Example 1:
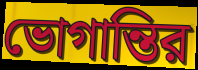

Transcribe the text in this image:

ভোগান্তির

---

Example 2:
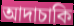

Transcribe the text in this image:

আদাচাকি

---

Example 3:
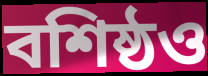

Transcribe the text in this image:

বশিষ্ঠও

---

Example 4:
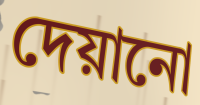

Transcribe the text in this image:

দেয়ানো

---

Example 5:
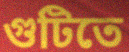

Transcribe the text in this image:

গুটিতে